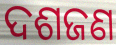
ଦଶଜଣ